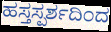
ಹಸ್ತಸ್ಪರ್ಶದಿಂದ